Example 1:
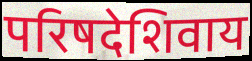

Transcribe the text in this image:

परिषदेशिवाय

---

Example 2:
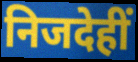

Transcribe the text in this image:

निजदेहीं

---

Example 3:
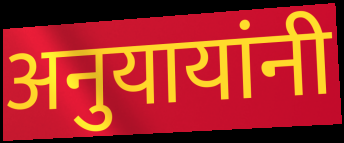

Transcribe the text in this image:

अनुयायांनी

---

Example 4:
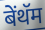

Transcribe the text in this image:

बेंथॅम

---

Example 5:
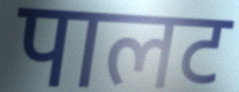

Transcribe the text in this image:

पालट